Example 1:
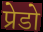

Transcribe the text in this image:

प्रेडो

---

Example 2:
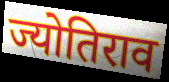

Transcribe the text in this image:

ज्योतिराव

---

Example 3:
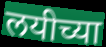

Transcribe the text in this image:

लयीच्या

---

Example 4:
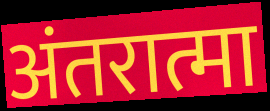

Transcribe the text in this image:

अंतरात्मा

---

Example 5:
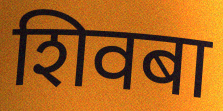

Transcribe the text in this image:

शिवबा